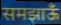
समझाऊँ